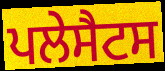
ਪਲੇਸੈਟਸ